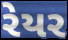
રેયર